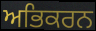
ਅਭਿਕਰਨ